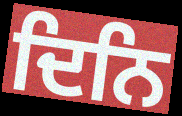
ਦਿਨਿ